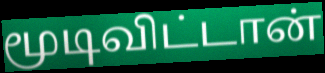
மூடிவிட்டான்